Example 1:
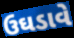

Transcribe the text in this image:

ઉઘડાવે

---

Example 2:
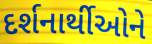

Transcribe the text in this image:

દર્શનાર્થીઓને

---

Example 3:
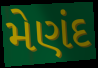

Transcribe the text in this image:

મેણંદ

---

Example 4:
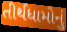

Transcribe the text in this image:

તીર્થધામોનું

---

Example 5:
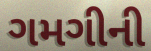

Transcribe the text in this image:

ગમગીની